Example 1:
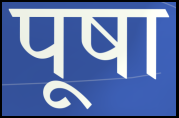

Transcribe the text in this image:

पूषा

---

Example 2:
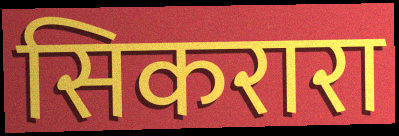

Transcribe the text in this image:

सिकरारा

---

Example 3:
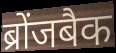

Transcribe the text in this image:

ब्रोंजबैक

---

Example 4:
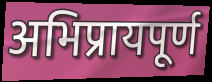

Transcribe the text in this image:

अभिप्रायपूर्ण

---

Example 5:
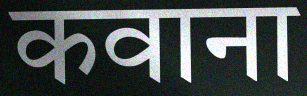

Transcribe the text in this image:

कवाना